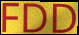
FDD